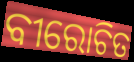
ବୀରୋଚିତ